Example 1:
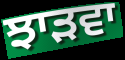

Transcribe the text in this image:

ਝਾੜਵਾ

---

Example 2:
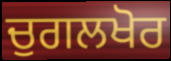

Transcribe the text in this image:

ਚੁਗਲਖੋਰ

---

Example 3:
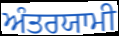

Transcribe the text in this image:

ਅੰਤਰਯਾਮੀ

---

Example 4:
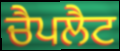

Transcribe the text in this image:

ਚੈਪਲੈਟ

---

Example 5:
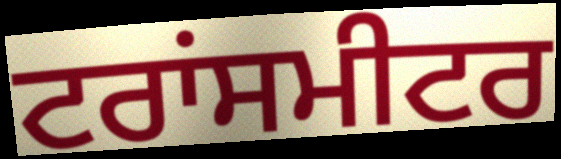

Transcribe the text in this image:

ਟਰਾਂਸਮੀਟਰ